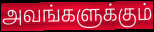
அவங்களுக்கும்